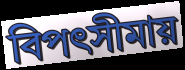
বিপৎসীমায়